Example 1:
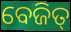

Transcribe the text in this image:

ବେଜିତ୍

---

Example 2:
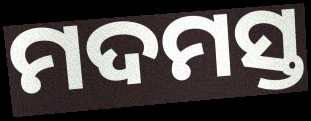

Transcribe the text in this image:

ମଦମସ୍ତ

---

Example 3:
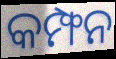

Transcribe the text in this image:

କମ୍ଫନ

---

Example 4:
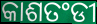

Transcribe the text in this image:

କାଶତଂଡୀ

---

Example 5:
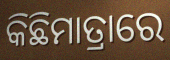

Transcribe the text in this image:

କିଛିମାତ୍ରାରେ